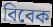
বিবেক